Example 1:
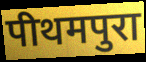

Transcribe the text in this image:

पीथमपुरा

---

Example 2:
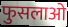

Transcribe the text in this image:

फुसलाओ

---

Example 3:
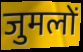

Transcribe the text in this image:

जुमलों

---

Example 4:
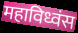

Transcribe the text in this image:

महाविध्वंस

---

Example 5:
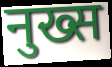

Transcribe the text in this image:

नुख्स